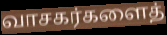
வாசகர்களைத்